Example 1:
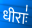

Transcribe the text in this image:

धीराः॑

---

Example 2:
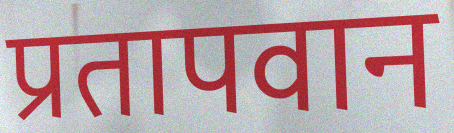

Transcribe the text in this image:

प्रतापवान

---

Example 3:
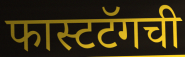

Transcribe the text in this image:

फास्टटॅगची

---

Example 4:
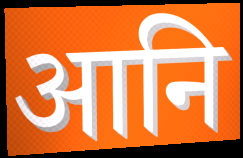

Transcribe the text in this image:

आनि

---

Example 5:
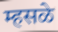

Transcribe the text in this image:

म्हसळे